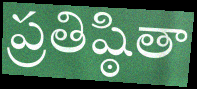
ప్రతిష్ఠితా